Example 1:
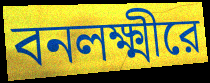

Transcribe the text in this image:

বনলক্ষ্মীরে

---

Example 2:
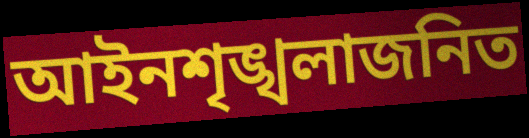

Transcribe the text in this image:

আইনশৃঙ্খলাজনিত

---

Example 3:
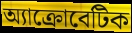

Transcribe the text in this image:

অ্যাক্রোবেটিক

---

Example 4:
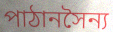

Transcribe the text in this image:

পাঠানসৈন্য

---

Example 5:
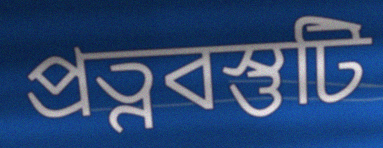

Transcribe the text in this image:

প্রত্নবস্তুটি